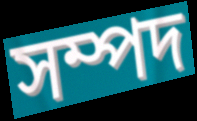
সম্পদ